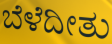
ಬೆಳೆದೀತು